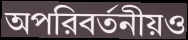
অপরিবর্তনীয়ও